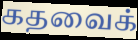
கதவைக்